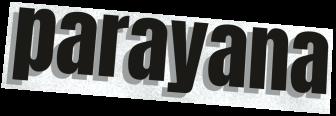
parayana